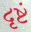
દૃષ્ટં